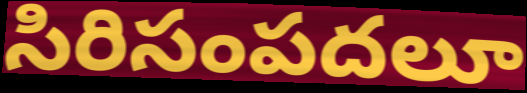
సిరిసంపదలూ